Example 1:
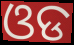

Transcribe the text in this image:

ଓଡ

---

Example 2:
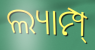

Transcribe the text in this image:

ଲ୍ୟାମ୍ପ୍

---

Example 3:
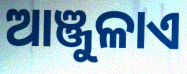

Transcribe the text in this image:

ଆଞ୍ଜୁଳାଏ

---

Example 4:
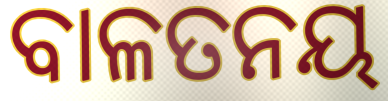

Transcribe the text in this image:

ବାଳତନୟ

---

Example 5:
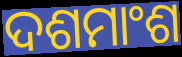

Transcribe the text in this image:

ଦଶମାଂଶ